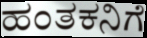
ಹಂತಕನಿಗೆ